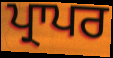
ਪ੍ਰਾਪਰ